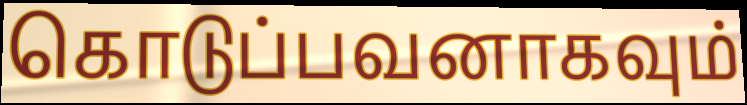
கொடுப்பவனாகவும்